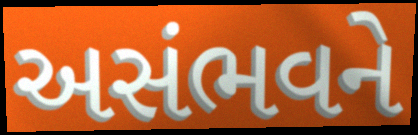
અસંભવને